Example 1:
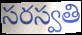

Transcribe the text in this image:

సరస్వతి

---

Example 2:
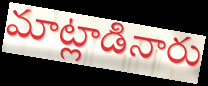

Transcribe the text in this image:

మాట్లాడినారు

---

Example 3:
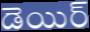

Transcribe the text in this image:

డెయిర్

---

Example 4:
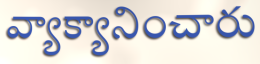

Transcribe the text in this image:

వ్యాక్యానించారు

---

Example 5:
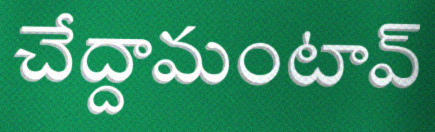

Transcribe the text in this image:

చేద్దామంటావ్